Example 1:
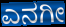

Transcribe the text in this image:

ಎನಗೀ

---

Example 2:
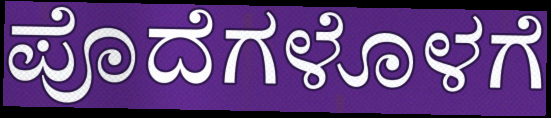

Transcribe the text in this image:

ಪೊದೆಗಳೊಳಗೆ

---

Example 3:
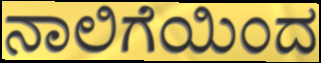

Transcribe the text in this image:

ನಾಲಿಗೆಯಿಂದ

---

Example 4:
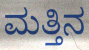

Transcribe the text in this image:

ಮತ್ತಿನ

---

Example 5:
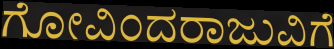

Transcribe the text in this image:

ಗೋವಿಂದರಾಜುವಿಗೆ